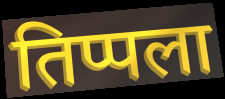
तिप्पला